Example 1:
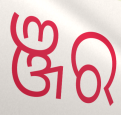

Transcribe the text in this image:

ଞ୍ଜର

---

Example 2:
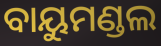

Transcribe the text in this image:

ବାୟୁମଣ୍ଡଲ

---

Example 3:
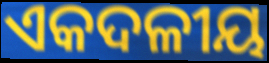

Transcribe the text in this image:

ଏକଦଳୀୟ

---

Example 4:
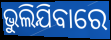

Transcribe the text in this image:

ଭୁଲିଯିବାରେ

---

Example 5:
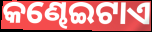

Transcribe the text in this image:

କଣ୍ଢେଇଟାଏ